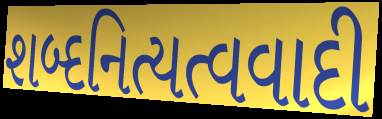
શબ્દનિત્યત્વવાદી